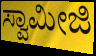
ಸ್ವಾಮೀಜಿ